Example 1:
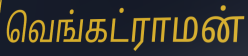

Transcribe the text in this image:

வெங்கட்ராமன்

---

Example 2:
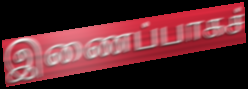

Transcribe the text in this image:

இணைப்பாகச்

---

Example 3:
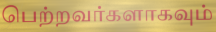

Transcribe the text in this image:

பெற்றவர்களாகவும்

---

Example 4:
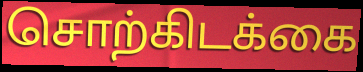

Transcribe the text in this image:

சொற்கிடக்கை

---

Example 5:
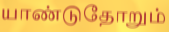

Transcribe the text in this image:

யாண்டுதோறும்